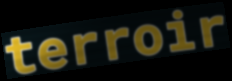
terroir